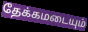
தேக்கமடையும்